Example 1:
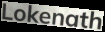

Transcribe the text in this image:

Lokenath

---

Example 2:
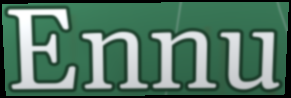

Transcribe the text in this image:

Ennu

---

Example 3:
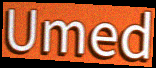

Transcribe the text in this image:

Umed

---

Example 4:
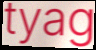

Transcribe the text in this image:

tyag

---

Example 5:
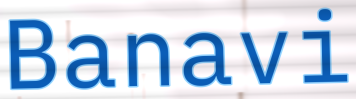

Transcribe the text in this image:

Banavi